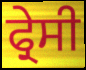
ਫ੍ਰੇਸੀ